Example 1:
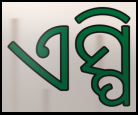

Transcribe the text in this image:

ଏସ୍ପି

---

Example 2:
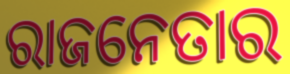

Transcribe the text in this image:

ରାଜନେତାର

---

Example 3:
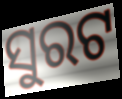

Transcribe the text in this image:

ସୁରଟ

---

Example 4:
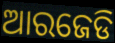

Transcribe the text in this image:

ଆରଜେଡି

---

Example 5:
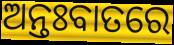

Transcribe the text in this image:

ଅନ୍ତଃବାତରେ